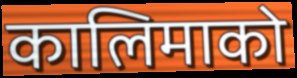
कालिमाको